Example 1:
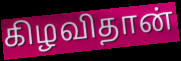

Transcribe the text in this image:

கிழவிதான்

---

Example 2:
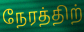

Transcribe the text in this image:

நேரத்திற்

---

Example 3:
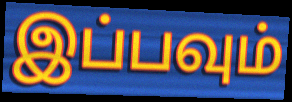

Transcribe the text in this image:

இப்பவும்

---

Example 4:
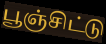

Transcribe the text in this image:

பூஞ்சிட்டு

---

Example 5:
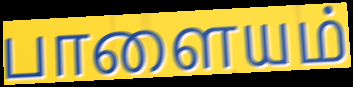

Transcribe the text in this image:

பாளையம்